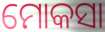
ମୋକସା